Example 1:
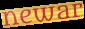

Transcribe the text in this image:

newar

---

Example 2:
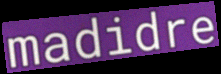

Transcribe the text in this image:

madidre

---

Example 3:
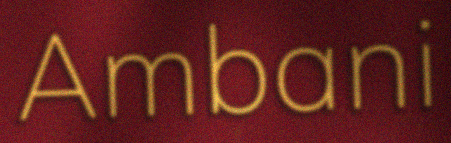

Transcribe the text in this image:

Ambani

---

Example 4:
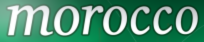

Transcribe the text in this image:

morocco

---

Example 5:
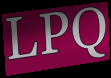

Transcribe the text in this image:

LPQ